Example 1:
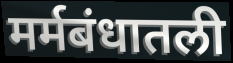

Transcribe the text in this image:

मर्मबंधातली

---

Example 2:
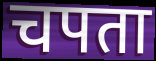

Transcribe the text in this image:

चपता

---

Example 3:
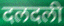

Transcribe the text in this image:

दलदली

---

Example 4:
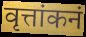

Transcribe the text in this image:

वृत्तांकनं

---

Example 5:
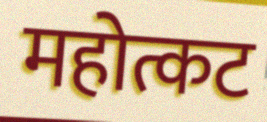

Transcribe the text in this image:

महोत्कट